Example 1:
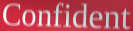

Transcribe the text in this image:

Confident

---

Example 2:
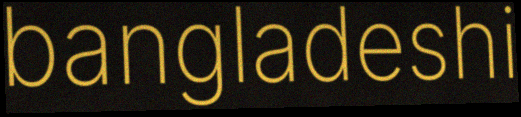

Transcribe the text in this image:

bangladeshi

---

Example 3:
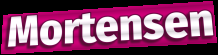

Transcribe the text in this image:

Mortensen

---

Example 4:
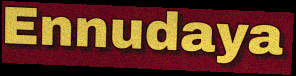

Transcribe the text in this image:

Ennudaya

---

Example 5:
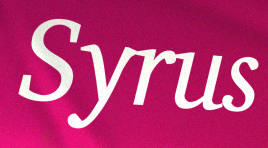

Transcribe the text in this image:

Syrus